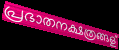
പ്രഭാതനക്ഷത്രങ്ങള്